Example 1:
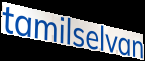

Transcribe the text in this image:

tamilselvan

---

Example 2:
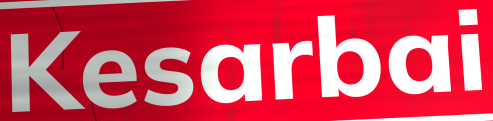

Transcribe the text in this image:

Kesarbai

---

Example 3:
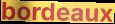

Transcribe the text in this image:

bordeaux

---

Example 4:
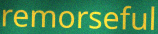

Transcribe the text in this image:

remorseful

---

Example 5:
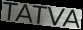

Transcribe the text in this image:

TATVA